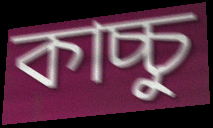
কাচ্চু